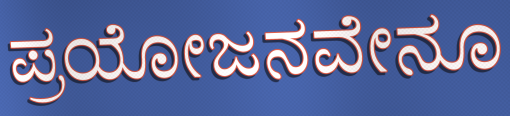
ಪ್ರಯೋಜನವೇನೂ